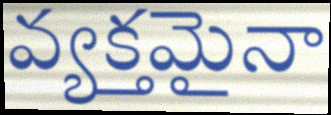
వ్యక్తమైనా